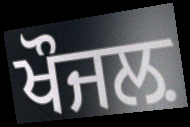
ਖੌਜਲ਼